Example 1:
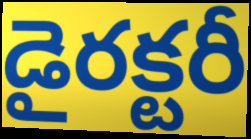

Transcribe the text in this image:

డైరక్టరీ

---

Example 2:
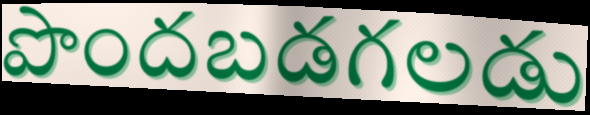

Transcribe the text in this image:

పొందబడగలడు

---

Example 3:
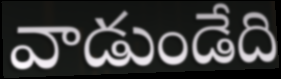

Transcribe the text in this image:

వాడుండేది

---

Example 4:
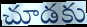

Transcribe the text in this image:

చూడకు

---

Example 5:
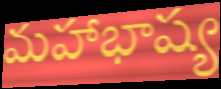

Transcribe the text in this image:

మహాభాష్య